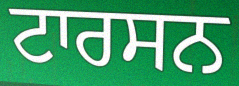
ਟਾਰਸਨ